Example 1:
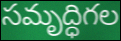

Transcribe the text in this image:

సమృద్ధిగల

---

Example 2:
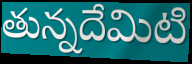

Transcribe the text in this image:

తున్నదేమిటి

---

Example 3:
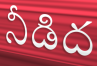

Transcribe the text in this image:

నీడిద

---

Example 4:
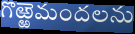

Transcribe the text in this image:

గొఱ్ఱెమందలను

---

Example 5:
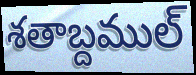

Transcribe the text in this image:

శతాబ్దముల్